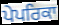
ਪੇਪਰਿਕਾ